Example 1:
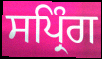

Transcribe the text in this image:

ਸਪ੍ਰਿੰਗ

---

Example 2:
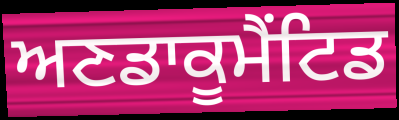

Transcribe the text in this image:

ਅਣਡਾਕੂਮੈਂਟਿਡ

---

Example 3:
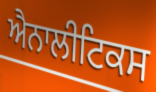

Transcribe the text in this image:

ਐਨਾਲੀਟਿਕਸ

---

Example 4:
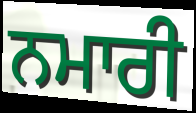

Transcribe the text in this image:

ਨਮਾਰੀ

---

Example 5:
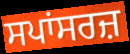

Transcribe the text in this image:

ਸਪਾਂਸਰਜ਼